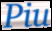
Piu